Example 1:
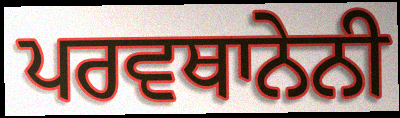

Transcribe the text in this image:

ਪਰਵਥਾਨੇਨੀ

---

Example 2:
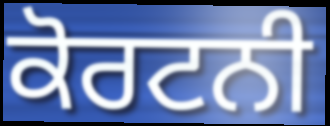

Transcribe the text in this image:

ਕੋਰਟਨੀ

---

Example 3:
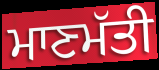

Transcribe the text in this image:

ਮਾਣਮੱਤੀ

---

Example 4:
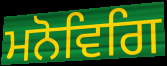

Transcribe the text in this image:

ਮਨੋਵਿਗਿ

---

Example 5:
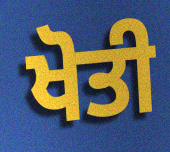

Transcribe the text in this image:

ਖੋਤੀ